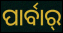
ପାର୍ବାର୍